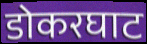
डोकरघाट